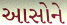
આસોને